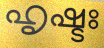
ഹൃഷ്ടഃ